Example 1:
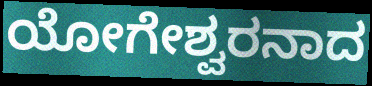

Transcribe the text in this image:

ಯೋಗೇಶ್ವರನಾದ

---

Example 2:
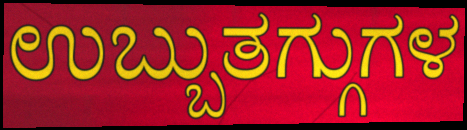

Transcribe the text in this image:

ಉಬ್ಬುತಗ್ಗುಗಳ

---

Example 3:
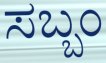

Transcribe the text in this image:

ಸಬ್ಬಂ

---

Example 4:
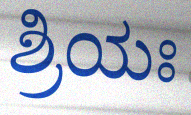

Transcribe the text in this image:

ಶ್ರಿಯಃ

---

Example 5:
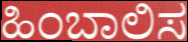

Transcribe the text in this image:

ಹಿಂಬಾಲಿಸ